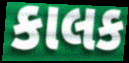
કાલક